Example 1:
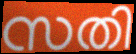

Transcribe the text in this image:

സതി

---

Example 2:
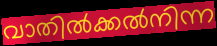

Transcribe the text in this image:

വാതിൽക്കൽനിന്ന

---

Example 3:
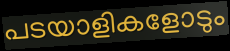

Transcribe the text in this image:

പടയാളികളോടും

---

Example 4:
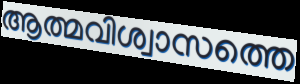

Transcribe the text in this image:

ആത്മവിശ്വാസത്തെ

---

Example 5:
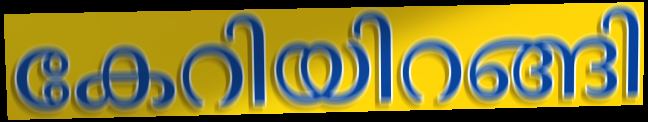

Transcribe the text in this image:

കേറിയിറങ്ങി